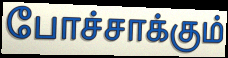
போச்சாக்கும்